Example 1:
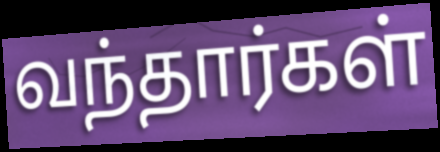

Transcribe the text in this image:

வந்தார்கள்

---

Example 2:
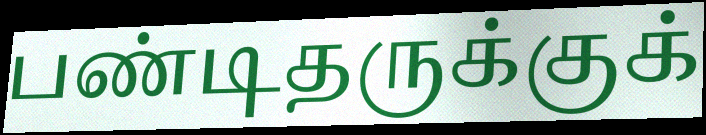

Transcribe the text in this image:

பண்டிதருக்குக்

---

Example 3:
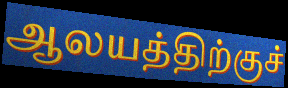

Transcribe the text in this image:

ஆலயத்திற்குச்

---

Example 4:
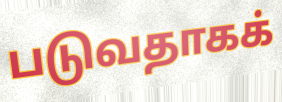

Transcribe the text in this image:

படுவதாகக்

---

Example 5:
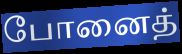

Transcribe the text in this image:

போனைத்